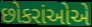
છોકરાંઓએ